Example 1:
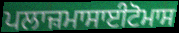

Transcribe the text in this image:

ਪਲਾਜ਼ਮਾਸਾਈਟੋਮਾਸ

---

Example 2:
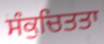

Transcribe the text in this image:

ਸੰਕੁਚਿਤਤਾ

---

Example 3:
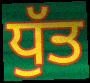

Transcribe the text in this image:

ਧੁੱਤ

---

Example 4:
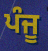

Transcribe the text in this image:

ਪੰਜੂ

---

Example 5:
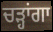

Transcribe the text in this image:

ਚੜ੍ਹਾਂਗਾ